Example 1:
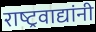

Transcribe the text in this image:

राष्ट्रवाद्यांनी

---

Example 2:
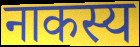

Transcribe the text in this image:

नाकस्य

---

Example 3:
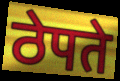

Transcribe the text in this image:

ठेपते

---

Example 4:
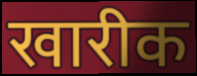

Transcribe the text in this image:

खारीक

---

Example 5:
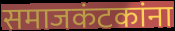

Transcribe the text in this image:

समाजकंटकांना